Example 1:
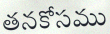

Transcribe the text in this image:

తనకోసము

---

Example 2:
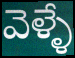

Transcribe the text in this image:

వెళ్ళే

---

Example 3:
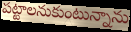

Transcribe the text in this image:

పట్టాలనుకుంటున్నాను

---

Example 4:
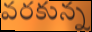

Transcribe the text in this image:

వరకున్న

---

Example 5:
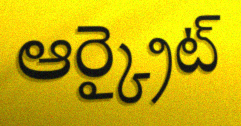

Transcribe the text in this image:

ఆర్క్రైట్